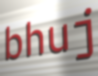
bhuj